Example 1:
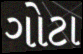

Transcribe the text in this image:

ગોટા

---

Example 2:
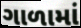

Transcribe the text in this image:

ગાળામાં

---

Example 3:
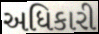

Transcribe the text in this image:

અધિકારી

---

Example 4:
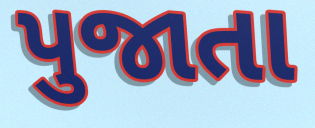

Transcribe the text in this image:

પુજાતા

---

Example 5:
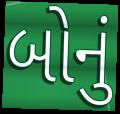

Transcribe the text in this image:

બોનું